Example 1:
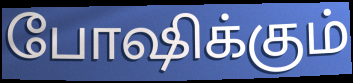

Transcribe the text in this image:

போஷிக்கும்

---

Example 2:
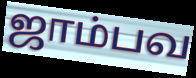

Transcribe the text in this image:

ஜாம்பவ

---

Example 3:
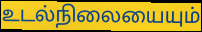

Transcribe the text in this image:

உடல்நிலையையும்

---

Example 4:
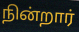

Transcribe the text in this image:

நின்றார்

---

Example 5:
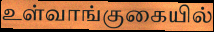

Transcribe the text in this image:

உள்வாங்குகையில்